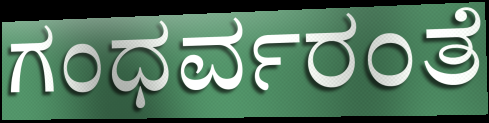
ಗಂಧರ್ವರಂತೆ